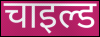
चाइल्ड